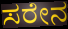
ಸರೇನ